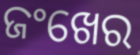
ଜଂଖେର